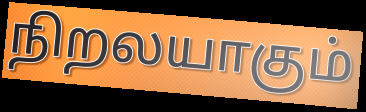
நிறலயாகும்